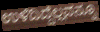
ಉಳಿದಿದ್ದೆಲ್ಲವನ್ನೂ